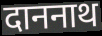
दाननाथ